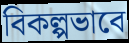
বিকল্পভাবে